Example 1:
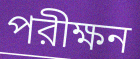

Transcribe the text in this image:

পরীক্ষন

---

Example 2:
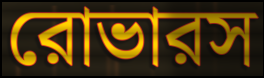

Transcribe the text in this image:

রোভারস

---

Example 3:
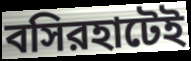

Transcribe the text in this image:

বসিরহাটেই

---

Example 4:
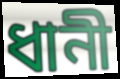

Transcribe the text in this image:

ধানী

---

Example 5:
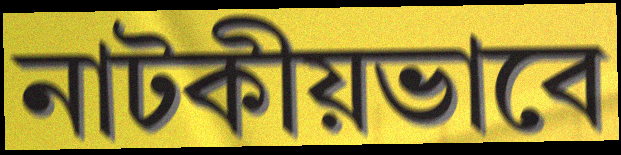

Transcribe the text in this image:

নাটকীয়ভাবে